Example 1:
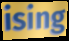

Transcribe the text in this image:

ising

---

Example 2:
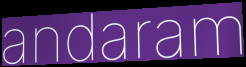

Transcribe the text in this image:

andaram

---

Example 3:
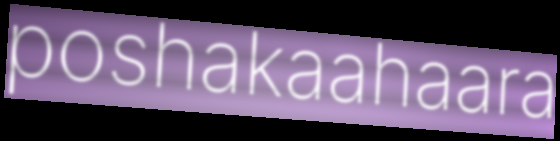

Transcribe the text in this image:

poshakaahaara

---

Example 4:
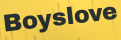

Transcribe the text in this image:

Boyslove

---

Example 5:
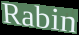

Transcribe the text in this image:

Rabin